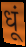
धूं